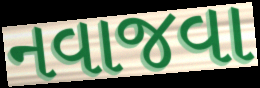
નવાજવા